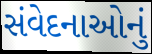
સંવેદનાઓનું